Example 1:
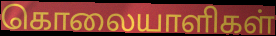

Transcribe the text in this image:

கொலையாளிகள்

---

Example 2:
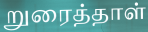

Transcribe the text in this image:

றுரைத்தாள்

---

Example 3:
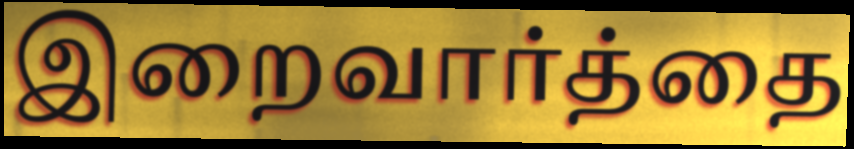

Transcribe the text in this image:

இறைவார்த்தை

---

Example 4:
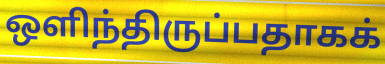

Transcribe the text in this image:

ஒளிந்திருப்பதாகக்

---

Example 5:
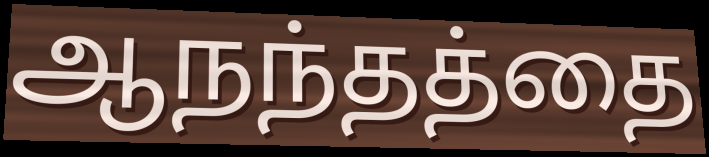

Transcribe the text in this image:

ஆநந்தத்தை